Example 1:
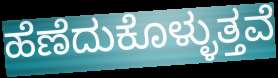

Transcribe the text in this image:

ಹೆಣೆದುಕೊಳ್ಳುತ್ತವೆ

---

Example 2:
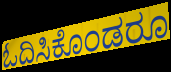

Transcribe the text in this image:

ಓದಿಸಿಕೊಂಡರೂ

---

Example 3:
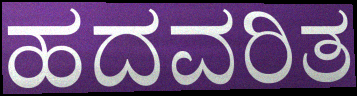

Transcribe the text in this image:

ಹದವರಿತ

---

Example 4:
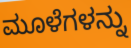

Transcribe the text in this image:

ಮೂಳೆಗಳನ್ನು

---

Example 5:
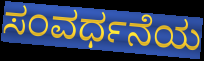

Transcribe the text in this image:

ಸಂವರ್ಧನೆಯ